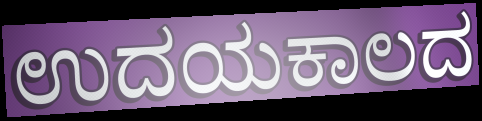
ಉದಯಕಾಲದ